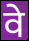
वे